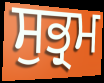
ਸੁਭ੍ਰਮ